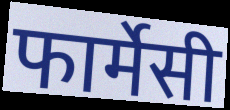
फार्मेसी